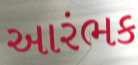
આરંભક